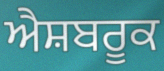
ਐਸ਼ਬਰੂਕ